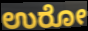
ಉರೋ